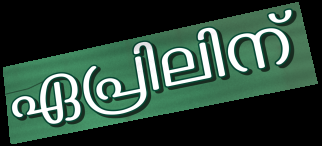
ഏപ്രിലിന്